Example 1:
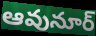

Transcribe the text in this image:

ఆవునూర్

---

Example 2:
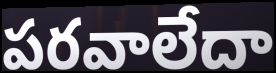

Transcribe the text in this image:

పరవాలేదా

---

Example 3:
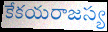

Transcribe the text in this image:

కేకయరాజస్య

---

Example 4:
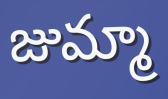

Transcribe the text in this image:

జుమ్మా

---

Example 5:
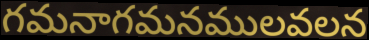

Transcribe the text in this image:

గమనాగమనములవలన